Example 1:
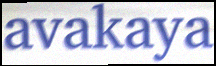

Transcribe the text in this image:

avakaya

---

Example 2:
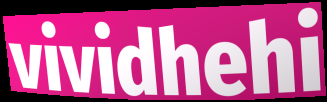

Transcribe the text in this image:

vividhehi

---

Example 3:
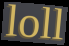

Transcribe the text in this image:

loll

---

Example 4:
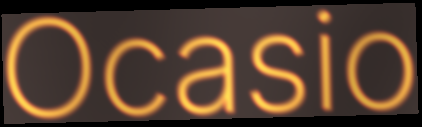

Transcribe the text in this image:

Ocasio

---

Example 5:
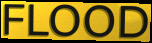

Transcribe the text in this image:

FLOOD